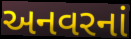
અનવરનાં